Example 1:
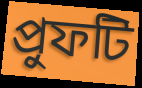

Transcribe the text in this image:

প্রুফটি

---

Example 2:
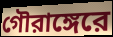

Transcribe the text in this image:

গৌরাঙ্গেরে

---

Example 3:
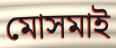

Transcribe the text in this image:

মোসমাই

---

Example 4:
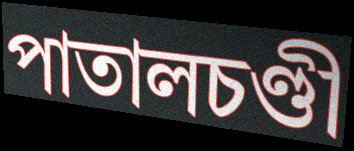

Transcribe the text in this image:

পাতালচণ্ডী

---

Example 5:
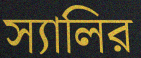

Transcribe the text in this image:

স্যালির